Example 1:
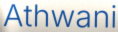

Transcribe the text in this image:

Athwani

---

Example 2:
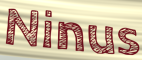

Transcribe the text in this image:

Ninus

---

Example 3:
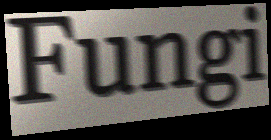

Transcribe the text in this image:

Fungi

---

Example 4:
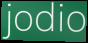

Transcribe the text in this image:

jodio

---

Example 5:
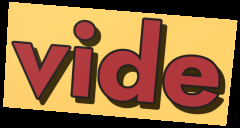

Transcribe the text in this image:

vide